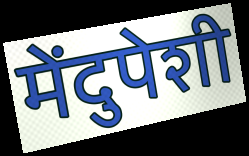
मेंदुपेशी